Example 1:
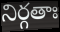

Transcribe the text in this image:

నిర్గతాః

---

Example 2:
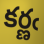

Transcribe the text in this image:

కర్ణఁ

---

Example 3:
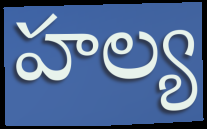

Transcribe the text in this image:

హల్య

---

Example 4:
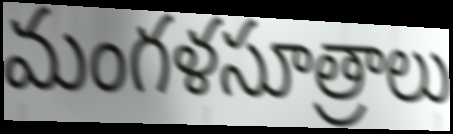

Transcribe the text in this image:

మంగళసూత్రాలు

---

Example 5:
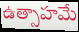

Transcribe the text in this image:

ఉత్సాహమే